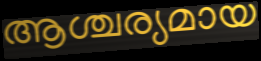
ആശ്ചര്യമായ